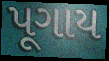
પૂગાય